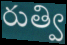
రుత్వి